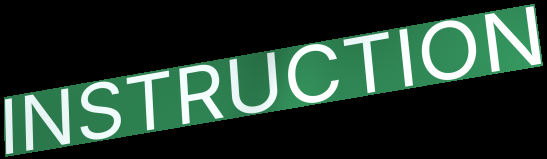
INSTRUCTION